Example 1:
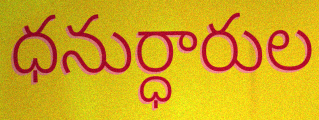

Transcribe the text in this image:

ధనుర్ధారుల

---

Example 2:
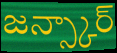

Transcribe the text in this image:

జన్స్కార్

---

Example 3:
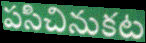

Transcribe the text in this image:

పసిచినుకట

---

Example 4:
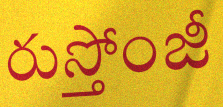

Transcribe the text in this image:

రుస్తోంజీ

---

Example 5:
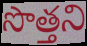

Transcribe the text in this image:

సొత్తని